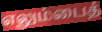
எலும்பைத்